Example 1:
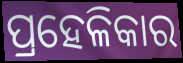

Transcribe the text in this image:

ପ୍ରହେଳିକାର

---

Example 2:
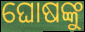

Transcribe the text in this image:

ଘୋଷଙ୍କୁ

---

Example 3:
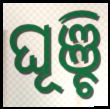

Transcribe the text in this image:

ଘୂଞ୍ଚି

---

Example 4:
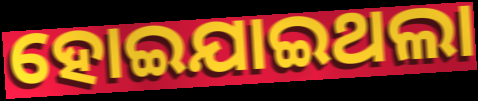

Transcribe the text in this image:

ହୋଇଯାଇଥଲା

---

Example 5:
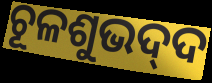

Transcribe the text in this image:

ଚୂଳଶୁଭଦ୍‍ଦ